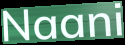
Naani